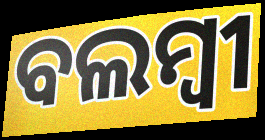
ବଲମ୍ୱୀ